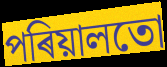
পৰিয়ালতো